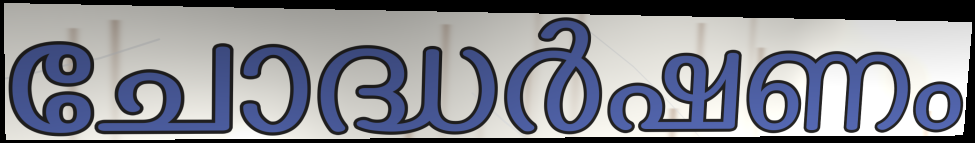
ചോദ്ധർഷണം